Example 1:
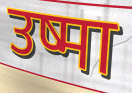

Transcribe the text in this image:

उष्मा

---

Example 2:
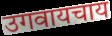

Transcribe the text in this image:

उगवायचाय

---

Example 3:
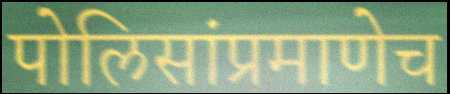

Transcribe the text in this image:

पोलिसांप्रमाणेच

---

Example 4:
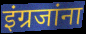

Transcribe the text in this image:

इंग्रजांना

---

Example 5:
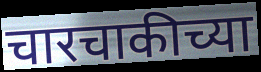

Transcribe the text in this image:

चारचाकीच्या